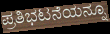
ಪ್ರತಿಭಟನೆಯನ್ನೂ